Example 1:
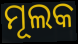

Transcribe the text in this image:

ମୂଲକ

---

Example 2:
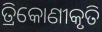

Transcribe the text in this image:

ତ୍ରିକୋଣୀକୃତି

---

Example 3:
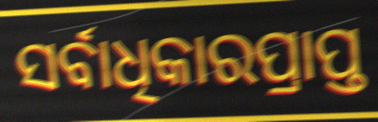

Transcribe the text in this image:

ସର୍ବାଧିକାରପ୍ରାପ୍ତ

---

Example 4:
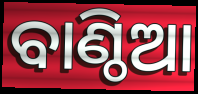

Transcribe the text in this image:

ବାଣ୍ଠିଆ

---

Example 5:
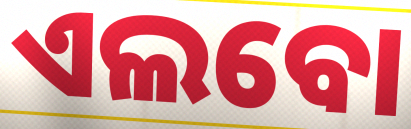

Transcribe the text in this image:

ଏଲବୋ